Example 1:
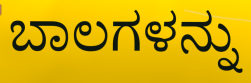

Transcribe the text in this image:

ಬಾಲಗಳನ್ನು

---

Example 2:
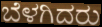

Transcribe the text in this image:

ಬೆಳಗಿದರು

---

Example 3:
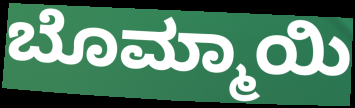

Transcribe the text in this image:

ಬೊಮ್ಮಾಯಿ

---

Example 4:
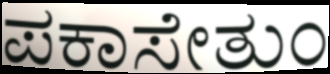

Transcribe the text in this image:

ಪಕಾಸೇತುಂ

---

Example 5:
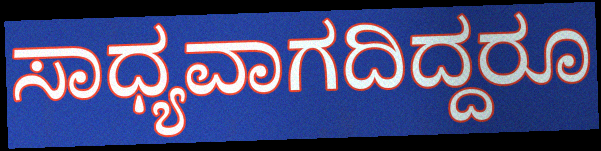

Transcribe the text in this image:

ಸಾಧ್ಯವಾಗದಿದ್ದರೂ